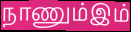
நாணும்இம்